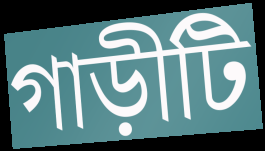
গাড়ীটি